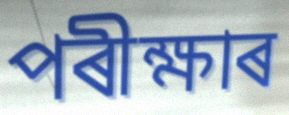
পৰীক্ষাৰ